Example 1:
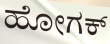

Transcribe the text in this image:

ಹೋಗಕ್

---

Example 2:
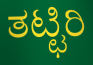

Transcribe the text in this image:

ತಟ್ಟಿರಿ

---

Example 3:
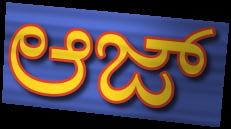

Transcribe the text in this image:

ಆಜ್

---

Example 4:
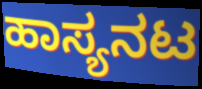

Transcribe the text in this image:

ಹಾಸ್ಯನಟ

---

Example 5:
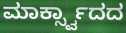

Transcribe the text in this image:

ಮಾರ್ಕ್ಸ್ವಾದದ